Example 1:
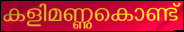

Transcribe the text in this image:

കളിമണ്ണുകൊണ്ട്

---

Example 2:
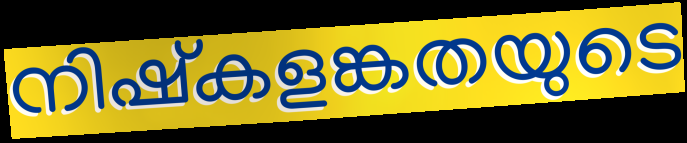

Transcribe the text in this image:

നിഷ്കളങ്കതയുടെ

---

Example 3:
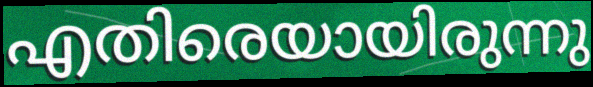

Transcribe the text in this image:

എതിരെയായിരുന്നു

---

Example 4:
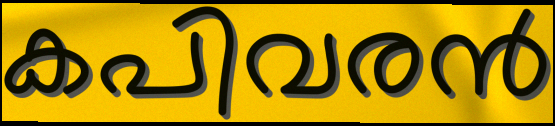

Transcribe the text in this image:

കപിവരൻ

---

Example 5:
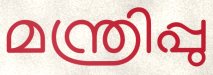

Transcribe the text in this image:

മന്ത്രിപ്പു